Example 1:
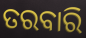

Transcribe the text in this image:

ତରବାରି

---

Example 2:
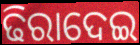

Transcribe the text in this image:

ଢିରାଦେଇ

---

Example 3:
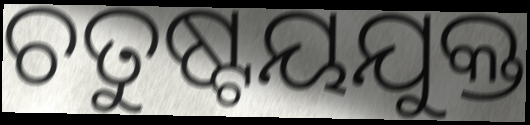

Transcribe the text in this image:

ଚତୁଷ୍ଟୟଯୁକ୍ତ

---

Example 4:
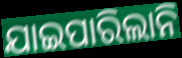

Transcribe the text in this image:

ଯାଇପାରିଲାନି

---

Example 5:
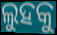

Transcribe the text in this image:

ଲୁହକୁ